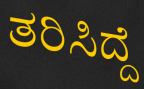
ತರಿಸಿದ್ದೆ